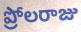
ప్రోలరాజు